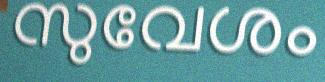
സുവേശം